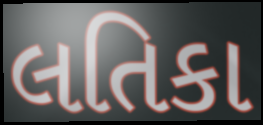
લતિકા